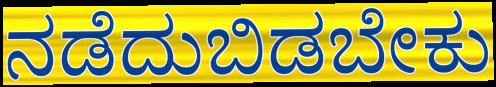
ನಡೆದುಬಿಡಬೇಕು